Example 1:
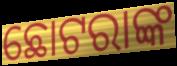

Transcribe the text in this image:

ଛୋଟରାଙ୍କ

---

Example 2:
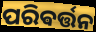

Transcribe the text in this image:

ପରିଵର୍ତ୍ତନ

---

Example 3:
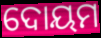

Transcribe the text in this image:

ଦୋୟମ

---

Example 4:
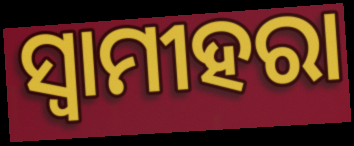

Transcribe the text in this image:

ସ୍ଵାମୀହରା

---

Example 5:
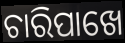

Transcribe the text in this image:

ଚାରିପାଖେ